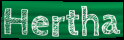
Hertha